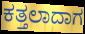
ಕತ್ತಲಾದಾಗ